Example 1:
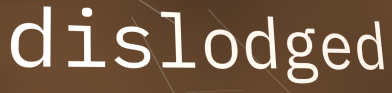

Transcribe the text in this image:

dislodged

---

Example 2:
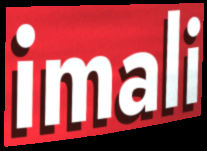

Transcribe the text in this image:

imali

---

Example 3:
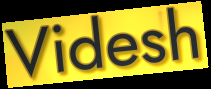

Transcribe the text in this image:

Videsh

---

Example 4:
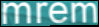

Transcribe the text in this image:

mrem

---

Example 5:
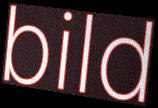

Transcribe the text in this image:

bild